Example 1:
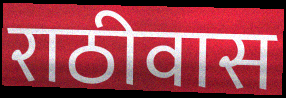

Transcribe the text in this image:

राठीवास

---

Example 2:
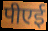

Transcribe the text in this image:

पीएई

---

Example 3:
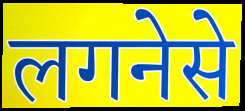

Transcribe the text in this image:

लगनेसे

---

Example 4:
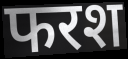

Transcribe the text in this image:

फरश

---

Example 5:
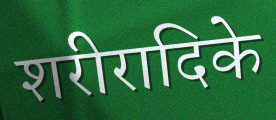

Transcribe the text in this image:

शरीरादिके